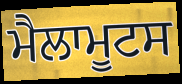
ਮੈਲਾਮੂਟਸ